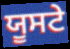
ਯੂਸਟੇ